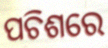
ପଚିଶରେ